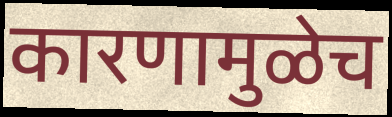
कारणामुळेच